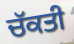
ਚੱਕਤੀ